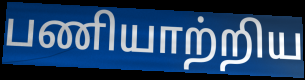
பணியாற்றிய